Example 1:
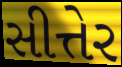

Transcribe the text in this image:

સીત્તેર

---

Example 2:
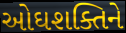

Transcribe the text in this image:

ઓઘશક્તિને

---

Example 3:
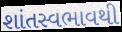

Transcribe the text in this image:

શાંતસ્વભાવથી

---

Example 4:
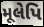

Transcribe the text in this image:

મૂલેપિ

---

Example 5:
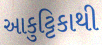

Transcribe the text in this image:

આકુટ્ટિકાથી